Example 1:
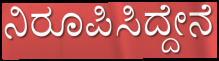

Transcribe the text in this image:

ನಿರೂಪಿಸಿದ್ದೇನೆ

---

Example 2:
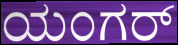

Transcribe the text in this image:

ಯಂಗರ್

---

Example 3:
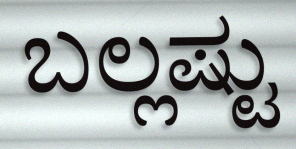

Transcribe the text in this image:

ಬಲ್ಲಷ್ಟು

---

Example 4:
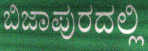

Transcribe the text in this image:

ಬಿಜಾಪುರದಲ್ಲಿ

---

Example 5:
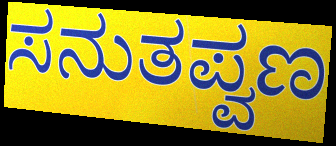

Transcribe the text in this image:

ಸನುತಪ್ವಣ